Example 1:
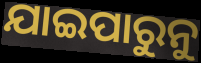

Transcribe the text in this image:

ଯାଇପାରୁନୁ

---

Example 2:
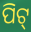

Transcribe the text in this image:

ପିଟ୍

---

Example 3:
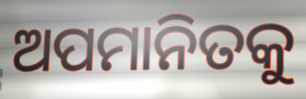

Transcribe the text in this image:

ଅପମାନିତକୁ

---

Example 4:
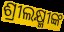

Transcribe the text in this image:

ଶ୍ରୀଲକ୍ଷ୍ମୀଙ୍କ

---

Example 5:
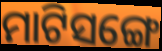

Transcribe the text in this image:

ମାଟିସଙ୍ଗେ